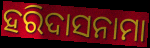
ହରିଦାସନାମା